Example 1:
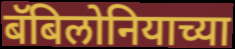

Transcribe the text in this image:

बॅबिलोनियाच्या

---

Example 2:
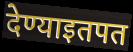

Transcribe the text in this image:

देण्याइतपत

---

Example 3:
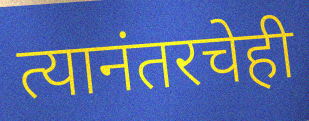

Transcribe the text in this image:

त्यानंतरचेही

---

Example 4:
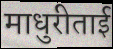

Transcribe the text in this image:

माधुरीताई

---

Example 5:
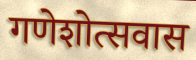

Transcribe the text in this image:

गणेशोत्सवास